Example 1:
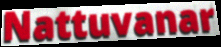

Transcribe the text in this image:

Nattuvanar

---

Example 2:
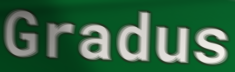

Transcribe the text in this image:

Gradus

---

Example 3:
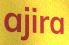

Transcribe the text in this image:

ajira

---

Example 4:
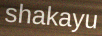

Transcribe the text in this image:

shakayu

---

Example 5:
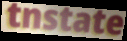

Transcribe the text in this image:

tnstate